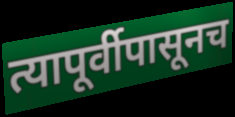
त्यापूर्वीपासूनच